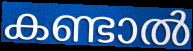
കണ്ടാൽ